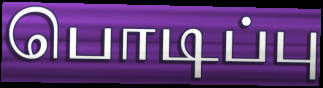
பொடிப்பு